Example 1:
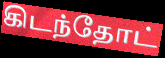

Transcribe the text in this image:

கிடந்தோட்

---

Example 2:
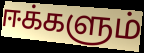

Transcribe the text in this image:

ஈக்களும்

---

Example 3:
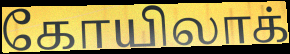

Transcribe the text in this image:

கோயிலாக்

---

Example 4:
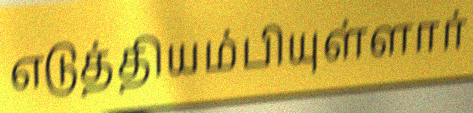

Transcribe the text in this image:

எடுத்தியம்பியுள்ளார்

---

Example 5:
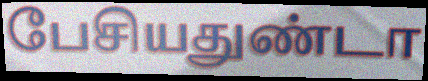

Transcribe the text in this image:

பேசியதுண்டா